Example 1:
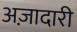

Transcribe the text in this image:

अज़ादारी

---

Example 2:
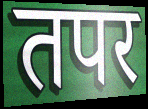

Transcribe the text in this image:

तपर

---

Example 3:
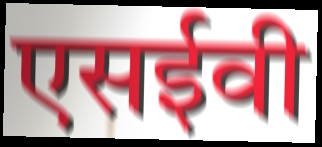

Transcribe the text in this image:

एसईवी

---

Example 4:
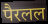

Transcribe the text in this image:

पैरलल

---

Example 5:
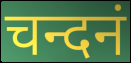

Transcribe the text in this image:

चन्दनं